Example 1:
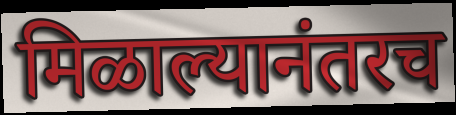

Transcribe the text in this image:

मिळाल्यानंतरच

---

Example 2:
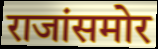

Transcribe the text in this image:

राजांसमोर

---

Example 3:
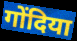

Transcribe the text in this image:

गोंदिया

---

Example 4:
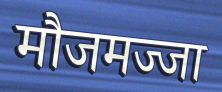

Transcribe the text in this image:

मौजमज्जा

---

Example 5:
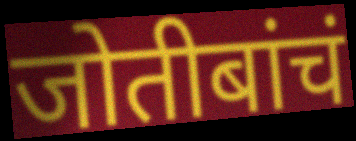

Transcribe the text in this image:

जोतीबांचं